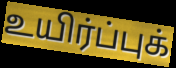
உயிர்ப்புக்